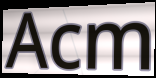
Acm